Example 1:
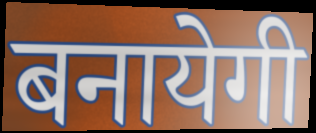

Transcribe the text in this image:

बनायेगी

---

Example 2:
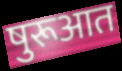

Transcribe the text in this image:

षुरूआत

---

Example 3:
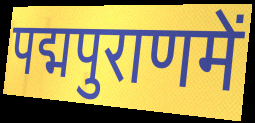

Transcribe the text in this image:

पद्मपुराणमें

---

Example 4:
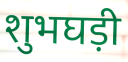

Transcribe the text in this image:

शुभघड़ी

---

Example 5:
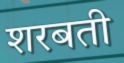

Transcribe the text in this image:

शरबती